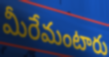
మీరేమంటారు